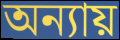
অন্যায়